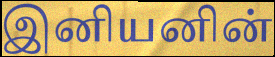
இனியனின்